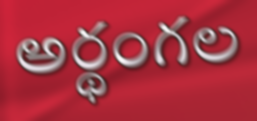
అర్థంగల